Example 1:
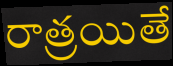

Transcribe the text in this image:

రాత్రయితే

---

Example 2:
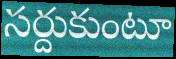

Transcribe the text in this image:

సర్దుకుంటూ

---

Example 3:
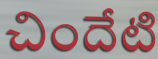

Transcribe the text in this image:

చిందేటి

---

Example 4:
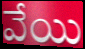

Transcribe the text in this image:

వేయి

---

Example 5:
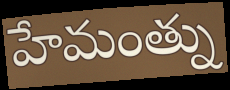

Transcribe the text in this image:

హేమంత్ను